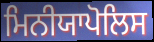
ਮਿਨੀਯਾਪੋਲਿਸ